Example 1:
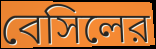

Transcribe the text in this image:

বেসিলের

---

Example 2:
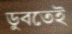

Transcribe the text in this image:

ডুবতেই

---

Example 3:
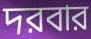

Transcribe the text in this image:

দরবার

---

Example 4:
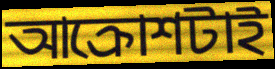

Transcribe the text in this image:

আক্রোশটাই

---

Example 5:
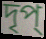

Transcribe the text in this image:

দৃপ্